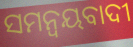
ସମନ୍ୱୟବାଦୀ